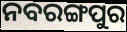
ନବରଙ୍ଗପୁର